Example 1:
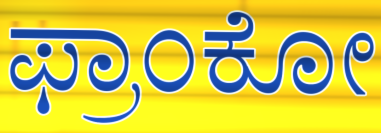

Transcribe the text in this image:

ಫ್ರಾಂಕೋ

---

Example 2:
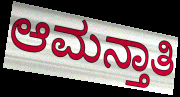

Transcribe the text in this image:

ಆಮನ್ತಾತಿ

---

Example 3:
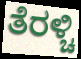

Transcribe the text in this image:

ತೆರಳ್ಚಿ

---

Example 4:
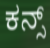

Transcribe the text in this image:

ಕನ್ಸ್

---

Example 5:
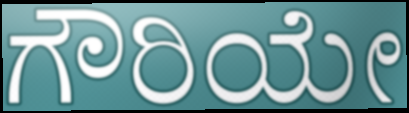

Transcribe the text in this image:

ಗೌರಿಯೇ